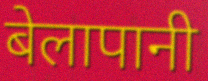
बेलापानी